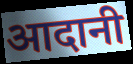
आदानी